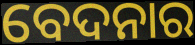
ବେଦନାର